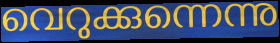
വെറുക്കുന്നെന്നു